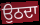
ਉਠਦਾ